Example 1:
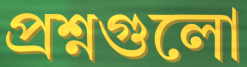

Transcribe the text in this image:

প্রশ্নগুলো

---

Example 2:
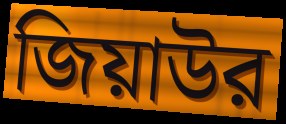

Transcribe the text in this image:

জিয়াউর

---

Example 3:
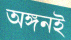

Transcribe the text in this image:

অঙ্গনই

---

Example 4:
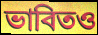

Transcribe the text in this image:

ভাবিতও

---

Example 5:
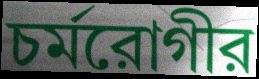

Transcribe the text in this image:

চর্মরোগীর